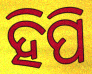
ହିପି